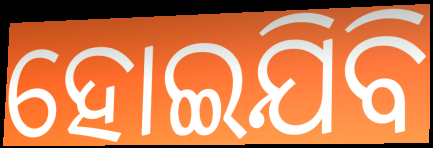
ହୋଇଯିବି